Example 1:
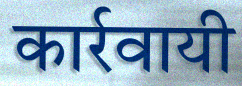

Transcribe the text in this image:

कार्रवायी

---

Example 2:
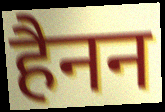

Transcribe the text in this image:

हैनन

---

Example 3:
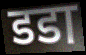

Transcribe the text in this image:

डडा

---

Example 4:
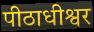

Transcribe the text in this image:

पीठाधीश्वर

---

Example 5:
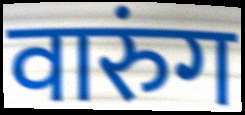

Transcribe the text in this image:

वारुंग